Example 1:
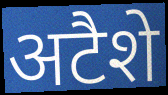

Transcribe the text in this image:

अटैशे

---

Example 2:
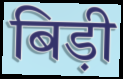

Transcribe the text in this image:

बिड़ी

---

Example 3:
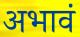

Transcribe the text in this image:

अभावं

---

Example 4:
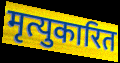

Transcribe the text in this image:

मृत्युकारित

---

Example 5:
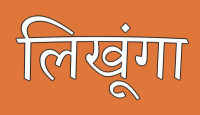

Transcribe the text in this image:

लिखूंगा